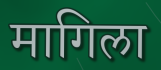
मागिला